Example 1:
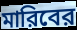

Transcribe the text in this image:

মারিবের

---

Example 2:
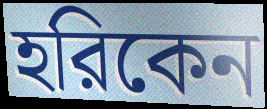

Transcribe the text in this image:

হরিকেন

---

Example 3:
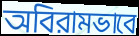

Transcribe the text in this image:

অবিরামভাবে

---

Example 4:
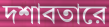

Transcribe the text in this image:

দশাবতারে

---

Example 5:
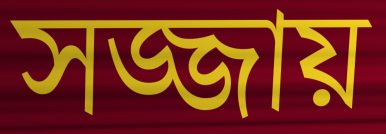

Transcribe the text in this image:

সজ্জায়